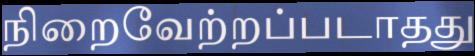
நிறைவேற்றப்படாதது